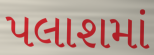
પલાશમાં